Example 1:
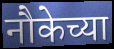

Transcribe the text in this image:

नौकेच्या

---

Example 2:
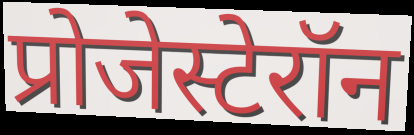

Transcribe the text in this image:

प्रोजेस्टेरॉन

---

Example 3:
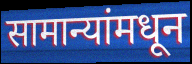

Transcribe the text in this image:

सामान्यांमधून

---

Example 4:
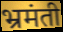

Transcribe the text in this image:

भ्रमंती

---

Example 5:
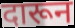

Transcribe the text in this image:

दारून